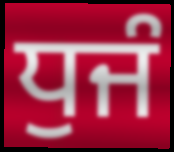
ਧੁਜੰ